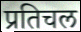
प्रतिचल